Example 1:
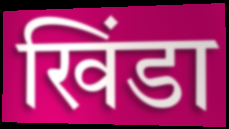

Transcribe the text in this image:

खिंडा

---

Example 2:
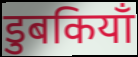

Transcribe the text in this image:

डुबकियाँ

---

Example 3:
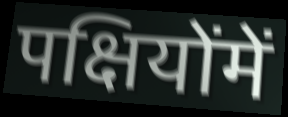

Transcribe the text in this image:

पक्षियोंमें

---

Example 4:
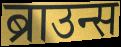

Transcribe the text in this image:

ब्राउन्स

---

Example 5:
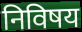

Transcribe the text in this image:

निविषय